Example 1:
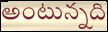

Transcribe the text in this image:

అంటున్నది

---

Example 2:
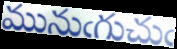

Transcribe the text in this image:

మునుఁగుచుఁ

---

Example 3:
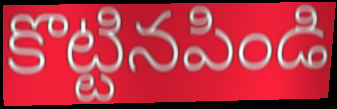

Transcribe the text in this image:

కొట్టినపిండి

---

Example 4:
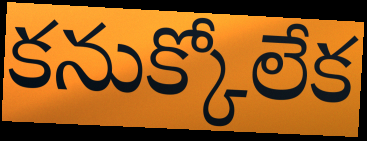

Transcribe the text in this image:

కనుక్కోలేక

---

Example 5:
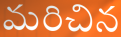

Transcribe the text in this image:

మరిచిన